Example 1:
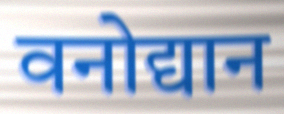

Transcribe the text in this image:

वनोद्यान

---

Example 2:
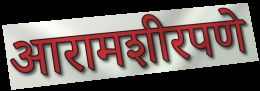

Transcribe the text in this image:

आरामशीरपणे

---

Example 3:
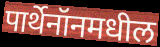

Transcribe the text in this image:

पार्थेनॉनमधील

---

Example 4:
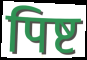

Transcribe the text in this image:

पिष्ट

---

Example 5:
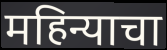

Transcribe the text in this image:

महिन्याचा